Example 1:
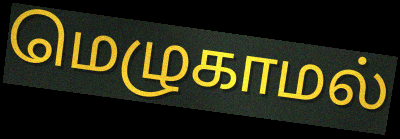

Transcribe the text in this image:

மெழுகாமல்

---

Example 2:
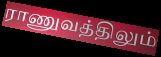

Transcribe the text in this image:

ராணுவத்திலும்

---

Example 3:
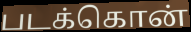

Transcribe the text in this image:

படக்கொன்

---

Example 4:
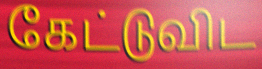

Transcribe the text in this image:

கேட்டுவிட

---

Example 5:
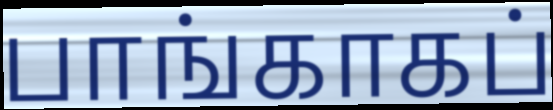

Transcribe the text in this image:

பாங்காகப்